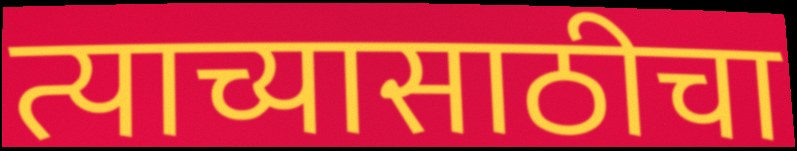
त्याच्यासाठीचा